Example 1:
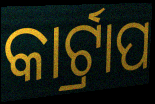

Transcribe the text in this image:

କାର୍ଟ୍ରାପ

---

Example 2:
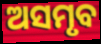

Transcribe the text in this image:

ଅସମୃବ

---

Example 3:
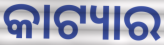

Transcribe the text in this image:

କାଟ୍ୟାର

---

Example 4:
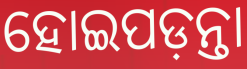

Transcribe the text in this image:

ହୋଇପଡ଼ନ୍ତା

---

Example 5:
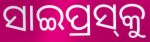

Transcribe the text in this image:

ସାଇପ୍ରସ୍‌କୁ